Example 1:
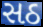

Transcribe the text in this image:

સઠ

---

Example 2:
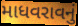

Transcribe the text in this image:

માધવરાવનું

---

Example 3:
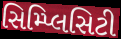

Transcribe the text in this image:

સિમ્પ્લિસિટી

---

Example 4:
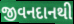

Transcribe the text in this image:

જીવનદાનથી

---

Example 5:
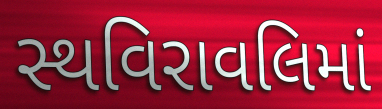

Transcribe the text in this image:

સ્થવિરાવલિમાં